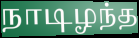
நாடிழந்த